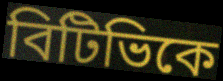
বিটিভিকে